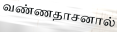
வண்ணதாசனால்